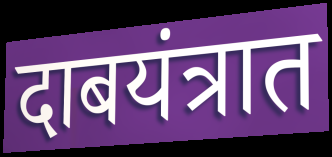
दाबयंत्रात